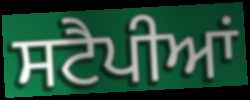
ਸਟੈਪੀਆਂ